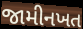
જામીનખત